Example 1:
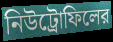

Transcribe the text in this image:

নিউট্রোফিলের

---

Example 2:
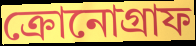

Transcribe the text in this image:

ক্রোনোগ্রাফ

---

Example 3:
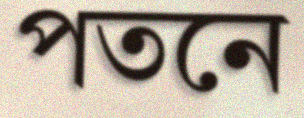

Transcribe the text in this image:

পতনে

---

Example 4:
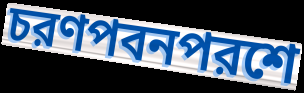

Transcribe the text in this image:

চরণপবনপরশে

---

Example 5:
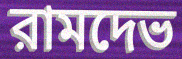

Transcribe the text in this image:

রামদেভ